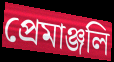
প্রেমাঞ্জলি